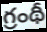
గ్రంథీ